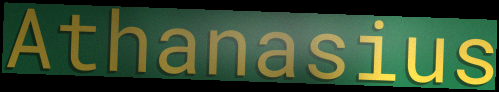
Athanasius